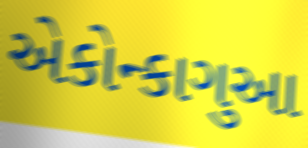
એકોન્કાગુઆ